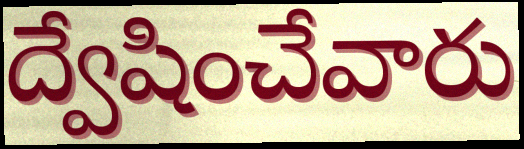
ద్వేషించేవారు